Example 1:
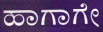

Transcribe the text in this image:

ಹಾಗಾಗೇ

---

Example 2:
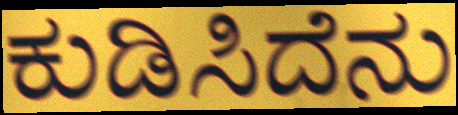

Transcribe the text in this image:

ಕುಡಿಸಿದೆನು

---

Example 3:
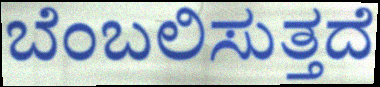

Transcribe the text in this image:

ಬೆಂಬಲಿಸುತ್ತದೆ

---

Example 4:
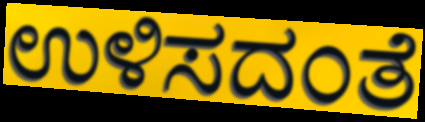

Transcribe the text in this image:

ಉಳಿಸದಂತೆ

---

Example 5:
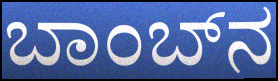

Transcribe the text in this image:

ಬಾಂಬ್‍ನ